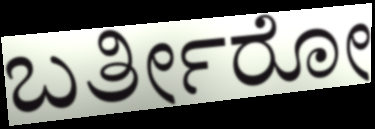
ಬರ್ತೀರೋ